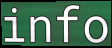
info